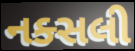
નક્સલી